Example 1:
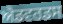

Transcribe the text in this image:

ਐਡਵਰਡਸ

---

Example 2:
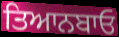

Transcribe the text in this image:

ਤਿਆਨਬਾਓ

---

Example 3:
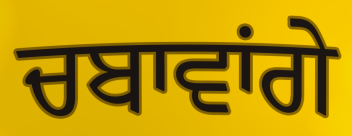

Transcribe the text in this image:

ਚਬਾਵਾਂਗੇ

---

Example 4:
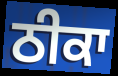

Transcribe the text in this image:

ਠੀਕਾ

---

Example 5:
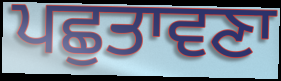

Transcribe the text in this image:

ਪਛੁਤਾਵਣਾ